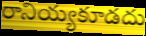
రానియ్యకూడదు